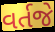
વર્તજે